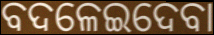
ବଦଳେଇଦେବା